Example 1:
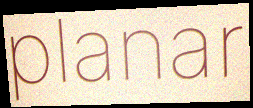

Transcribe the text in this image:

planar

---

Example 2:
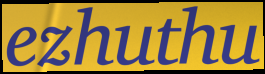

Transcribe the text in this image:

ezhuthu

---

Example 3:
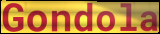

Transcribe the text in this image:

Gondola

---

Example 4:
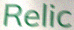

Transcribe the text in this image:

Relic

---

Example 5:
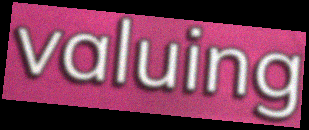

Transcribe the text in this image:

valuing